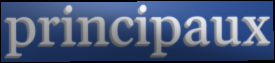
principaux